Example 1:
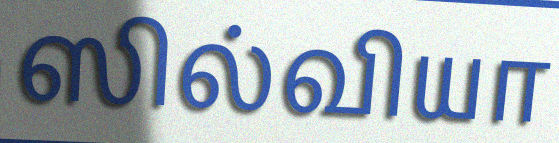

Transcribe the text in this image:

ஸில்வியா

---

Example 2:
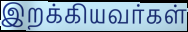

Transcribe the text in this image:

இறக்கியவர்கள்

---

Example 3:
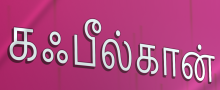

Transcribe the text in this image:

கஃபீல்கான்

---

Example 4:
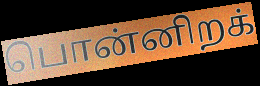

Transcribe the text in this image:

பொன்னிறக்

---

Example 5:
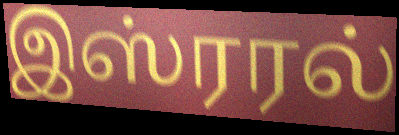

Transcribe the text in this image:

இஸ்ரரல்